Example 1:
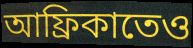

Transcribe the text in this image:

আফ্রিকাতেও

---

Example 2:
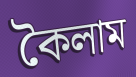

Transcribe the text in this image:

কৈলাম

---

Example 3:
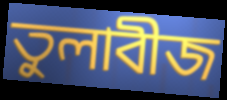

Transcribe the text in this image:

তুলাবীজ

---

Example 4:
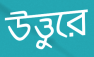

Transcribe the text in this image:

উত্তুরে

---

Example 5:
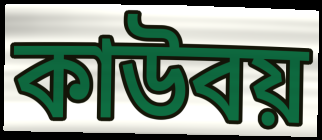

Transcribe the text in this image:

কাউবয়